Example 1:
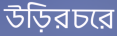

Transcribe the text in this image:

উড়িরচরে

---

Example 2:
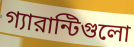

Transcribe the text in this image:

গ্যারান্টিগুলো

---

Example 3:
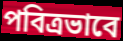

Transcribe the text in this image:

পবিত্রভাবে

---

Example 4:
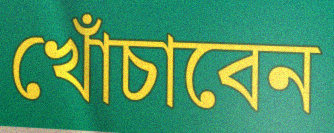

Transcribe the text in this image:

খোঁচাবেন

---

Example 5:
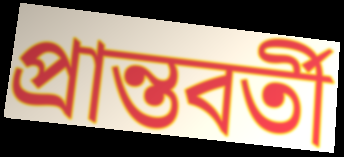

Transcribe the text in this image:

প্রান্তবর্তী